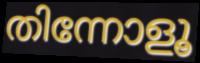
തിന്നോളൂ